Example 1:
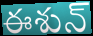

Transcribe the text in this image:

ఈశున్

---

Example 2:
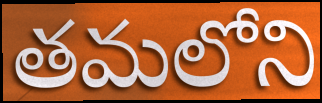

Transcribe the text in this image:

తమలోని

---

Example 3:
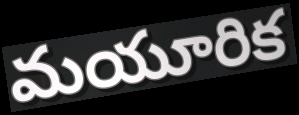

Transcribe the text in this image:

మయూరిక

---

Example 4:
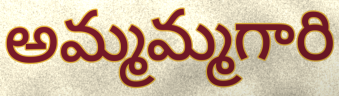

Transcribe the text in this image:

అమ్మమ్మగారి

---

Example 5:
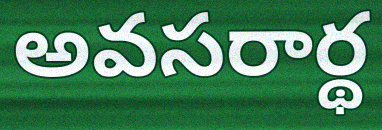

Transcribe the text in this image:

అవసరార్థ